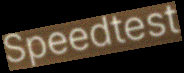
Speedtest